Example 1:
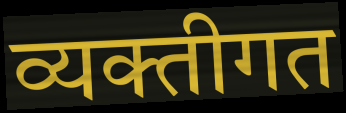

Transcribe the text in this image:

व्यक्तीगत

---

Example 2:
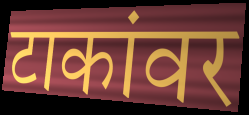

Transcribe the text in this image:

टाकांवर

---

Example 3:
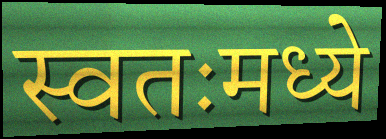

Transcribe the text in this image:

स्वतःमध्ये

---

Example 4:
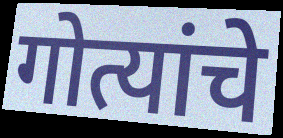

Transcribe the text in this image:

गोत्यांचे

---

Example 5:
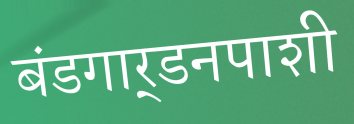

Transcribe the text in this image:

बंडगार्डनपाशी